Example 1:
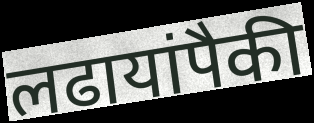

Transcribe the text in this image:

लढायांपैकी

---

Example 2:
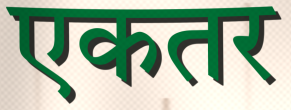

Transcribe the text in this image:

एकतर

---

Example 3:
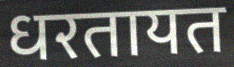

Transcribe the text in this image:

धरतायत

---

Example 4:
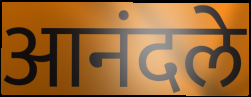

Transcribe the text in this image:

आनंदले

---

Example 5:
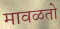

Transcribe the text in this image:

मावळतो